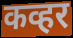
कव्हर